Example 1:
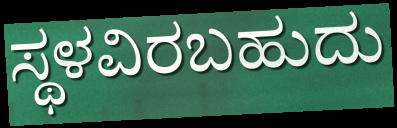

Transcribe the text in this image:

ಸ್ಥಳವಿರಬಹುದು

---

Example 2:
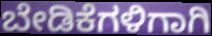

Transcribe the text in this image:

ಬೇಡಿಕೆಗಳಿಗಾಗಿ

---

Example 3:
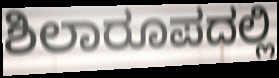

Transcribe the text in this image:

ಶಿಲಾರೂಪದಲ್ಲಿ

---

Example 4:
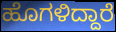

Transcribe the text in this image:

ಹೊಗಳಿದ್ದಾರೆ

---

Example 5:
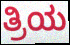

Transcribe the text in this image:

ತ್ರಿಯ